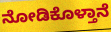
ನೋಡಿಕೊಳ್ತಾನೆ